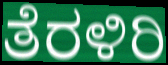
ತೆರಳಿರಿ